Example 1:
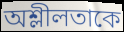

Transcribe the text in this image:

অশ্লীলতাকে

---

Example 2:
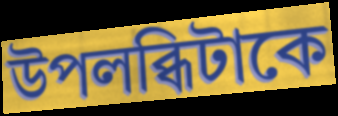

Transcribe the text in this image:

উপলব্ধিটাকে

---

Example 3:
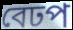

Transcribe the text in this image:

বেঢপ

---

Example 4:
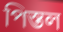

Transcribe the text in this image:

পিস্তল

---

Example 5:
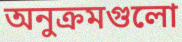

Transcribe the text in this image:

অনুক্রমগুলো